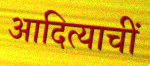
आदित्याचीं